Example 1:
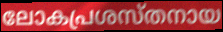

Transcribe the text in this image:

ലോകപ്രശസ്തനായ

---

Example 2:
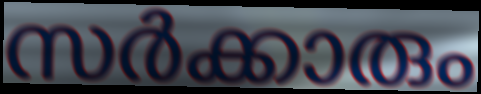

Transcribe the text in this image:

സർക്കാരും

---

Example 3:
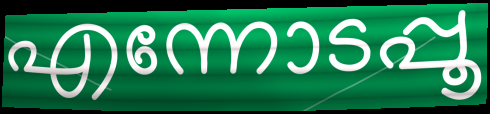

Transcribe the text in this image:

എന്നോടപ്പൂ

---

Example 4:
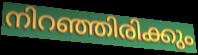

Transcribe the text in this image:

നിറഞ്ഞിരിക്കും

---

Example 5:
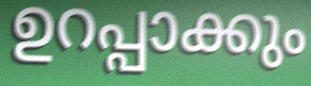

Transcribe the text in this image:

ഉറപ്പാക്കും